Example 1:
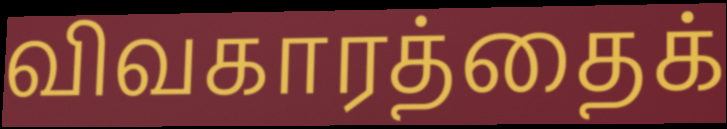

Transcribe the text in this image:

விவகாரத்தைக்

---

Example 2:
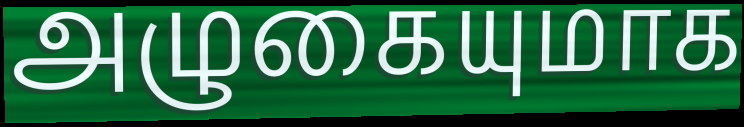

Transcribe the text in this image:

அழுகையுமாக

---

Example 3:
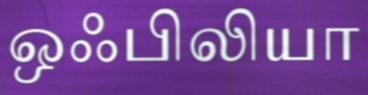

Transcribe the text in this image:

ஒஃபிலியா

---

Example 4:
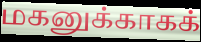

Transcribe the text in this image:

மகனுக்காகக்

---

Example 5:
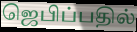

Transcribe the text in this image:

ஜெபிப்பதில்